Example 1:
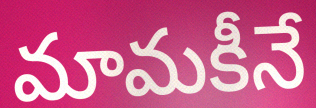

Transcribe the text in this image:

మామకీనే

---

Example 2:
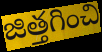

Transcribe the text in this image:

జిత్తగించి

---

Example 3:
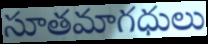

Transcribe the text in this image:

సూతమాగధులు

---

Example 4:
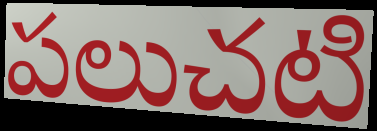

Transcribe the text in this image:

పలుచటి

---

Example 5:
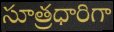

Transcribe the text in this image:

సూత్రధారిగా